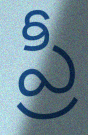
ప్రీ